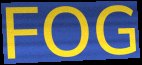
FOG